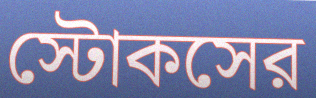
স্টোকসের